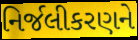
નિર્જલીકરણને